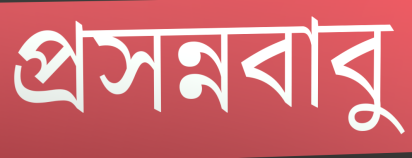
প্রসন্নবাবু